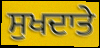
ਸੁਖਦਾਤੇ